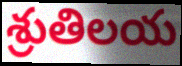
శ్రుతిలయ